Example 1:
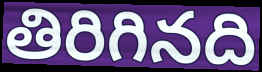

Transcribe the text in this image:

తిరిగినది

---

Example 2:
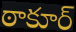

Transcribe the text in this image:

ఠాకూర్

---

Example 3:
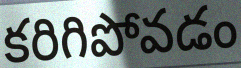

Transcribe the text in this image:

కరిగిపోవడం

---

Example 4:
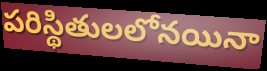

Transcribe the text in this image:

పరిస్థితులలోనయినా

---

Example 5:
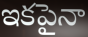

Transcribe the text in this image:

ఇకపైనా